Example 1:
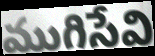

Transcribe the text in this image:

ముగిసేవి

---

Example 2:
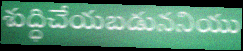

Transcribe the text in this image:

శుద్ధిచేయబడుననియు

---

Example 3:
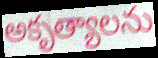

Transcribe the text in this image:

అకృత్యాలను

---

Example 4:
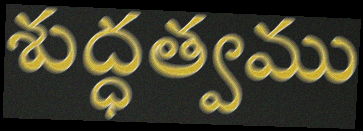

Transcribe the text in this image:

శుద్ధత్వము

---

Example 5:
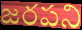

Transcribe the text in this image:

జరపని